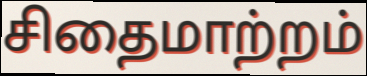
சிதைமாற்றம்